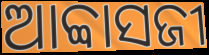
ଆବ୍ବାସଜୀ